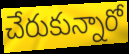
చేరుకున్నారో